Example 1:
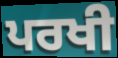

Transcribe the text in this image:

ਪਰਖੀ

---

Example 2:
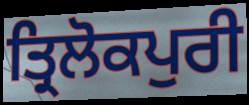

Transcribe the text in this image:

ਤ੍ਰਿਲੋਕਪੁਰੀ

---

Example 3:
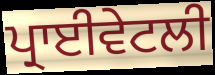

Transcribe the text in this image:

ਪ੍ਰਾਈਵੇਟਲੀ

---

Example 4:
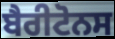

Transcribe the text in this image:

ਬੈਰੀਟੋਨਸ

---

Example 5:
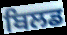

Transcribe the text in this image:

ਬਿਲਡ